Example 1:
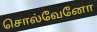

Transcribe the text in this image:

சொல்வேனோ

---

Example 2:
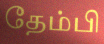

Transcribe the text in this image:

தேம்பி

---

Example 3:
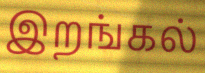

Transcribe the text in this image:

இறங்கல்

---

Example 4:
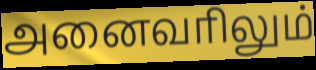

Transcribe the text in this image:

அனைவரிலும்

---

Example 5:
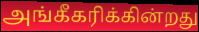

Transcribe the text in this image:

அங்கீகரிக்கின்றது